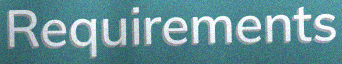
Requirements